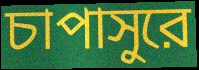
চাপাসুরে